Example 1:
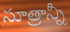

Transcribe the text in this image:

సూత్రాన్నీ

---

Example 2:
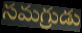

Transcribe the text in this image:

సమగ్రుడు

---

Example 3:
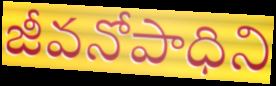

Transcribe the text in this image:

జీవనోపాధిని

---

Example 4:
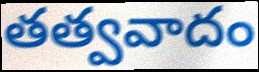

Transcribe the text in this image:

తత్వవాదం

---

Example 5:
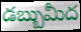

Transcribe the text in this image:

డబ్బుమీద